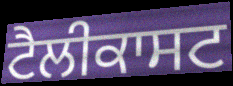
ਟੈਲੀਕਾਸਟ